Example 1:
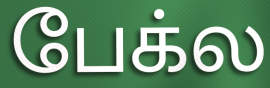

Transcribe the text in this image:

பேக்ல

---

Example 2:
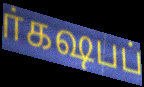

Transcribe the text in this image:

ர்கஷபப்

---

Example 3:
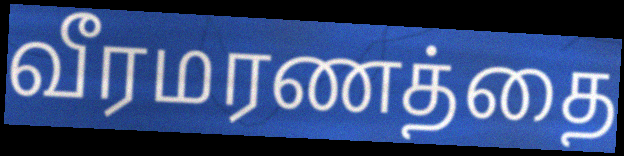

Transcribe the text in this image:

வீரமரணத்தை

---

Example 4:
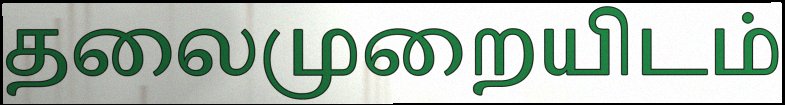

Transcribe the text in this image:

தலைமுறையிடம்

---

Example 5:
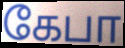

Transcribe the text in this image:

கேபா